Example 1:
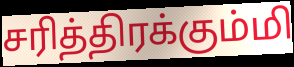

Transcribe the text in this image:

சரித்திரக்கும்மி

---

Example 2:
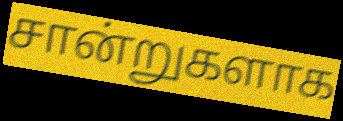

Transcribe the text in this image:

சான்றுகளாக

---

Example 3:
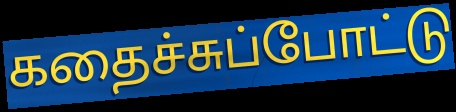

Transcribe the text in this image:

கதைச்சுப்போட்டு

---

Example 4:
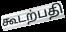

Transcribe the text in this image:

கூடற்பதி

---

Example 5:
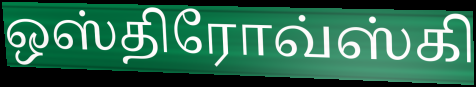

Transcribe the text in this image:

ஒஸ்திரோவ்ஸ்கி